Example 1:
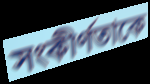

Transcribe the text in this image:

সংকীর্ণতাকে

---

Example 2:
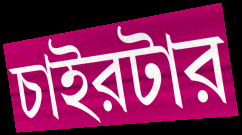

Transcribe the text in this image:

চাইরটার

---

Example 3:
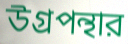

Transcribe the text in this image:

উগ্রপন্থার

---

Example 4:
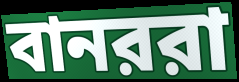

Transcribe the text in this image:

বানররা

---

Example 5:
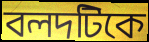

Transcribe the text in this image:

বলদটিকে